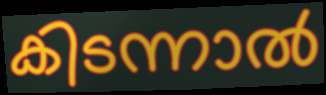
കിടന്നാൽ